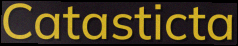
Catasticta